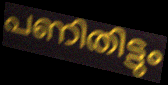
പണിതിട്ടും